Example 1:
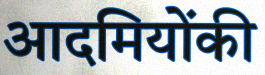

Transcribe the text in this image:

आदमियोंकी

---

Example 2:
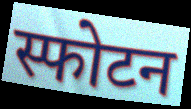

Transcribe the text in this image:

स्फोटन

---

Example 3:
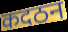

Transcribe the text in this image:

कदठन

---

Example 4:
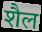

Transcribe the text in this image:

शैल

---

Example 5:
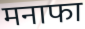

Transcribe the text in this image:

मनाफा